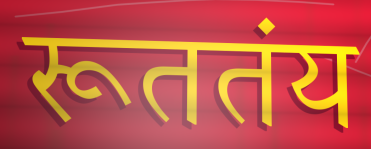
रूततंय